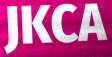
JKCA